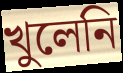
খুলেনি